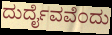
ದುರ್ದೈವವೆಂದು